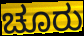
ಚೂರು